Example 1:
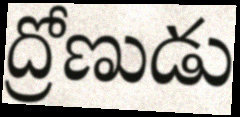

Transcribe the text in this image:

ద్రోణుడు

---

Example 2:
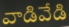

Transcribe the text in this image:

వాడివేడి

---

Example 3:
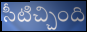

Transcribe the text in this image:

సీటిచ్చింది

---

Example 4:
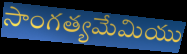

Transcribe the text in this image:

సాంగత్యమేమియు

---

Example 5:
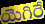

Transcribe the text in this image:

యెగిరే